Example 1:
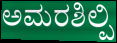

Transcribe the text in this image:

ಅಮರಶಿಲ್ಪಿ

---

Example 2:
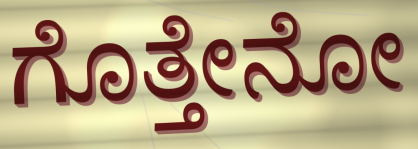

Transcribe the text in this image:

ಗೊತ್ತೇನೋ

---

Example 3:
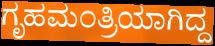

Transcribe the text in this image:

ಗೃಹಮಂತ್ರಿಯಾಗಿದ್ದ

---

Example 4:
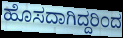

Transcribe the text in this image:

ಹೊಸದಾಗಿದ್ದರಿಂದ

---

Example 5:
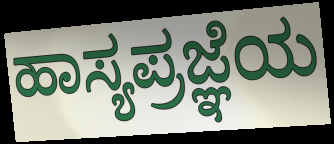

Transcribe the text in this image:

ಹಾಸ್ಯಪ್ರಜ್ಞೆಯ